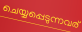
ചെയ്യപ്പെടുന്നവര്